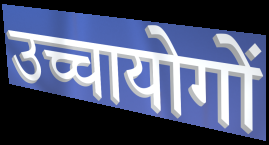
उच्‍चायोगों